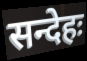
सन्देहः